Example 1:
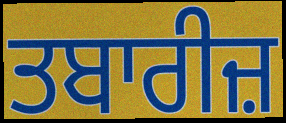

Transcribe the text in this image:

ਤਬਾਰੀਜ਼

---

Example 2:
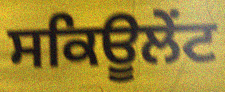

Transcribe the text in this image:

ਸਕਿਊਲੇਂਟ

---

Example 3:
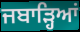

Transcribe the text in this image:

ਜਬਾੜ੍ਹਿਆਂ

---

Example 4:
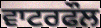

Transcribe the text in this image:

ਵਾਟਰਫੌਲ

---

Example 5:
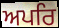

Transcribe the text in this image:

ਅਪਰਿ